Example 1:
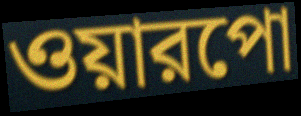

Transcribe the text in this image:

ওয়ারপো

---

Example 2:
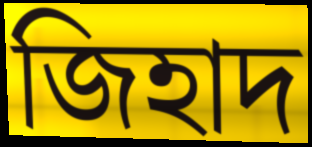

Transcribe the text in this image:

জিহাদ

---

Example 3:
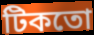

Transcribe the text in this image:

টিকতো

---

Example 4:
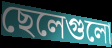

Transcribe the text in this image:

ছেলেগুলো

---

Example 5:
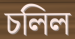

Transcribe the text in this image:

চলিল